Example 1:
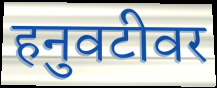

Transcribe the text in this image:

हनुवटीवर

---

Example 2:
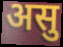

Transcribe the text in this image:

असु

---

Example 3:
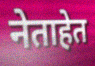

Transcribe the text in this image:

नेताहेत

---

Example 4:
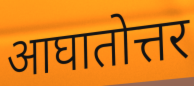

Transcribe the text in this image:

आघातोत्तर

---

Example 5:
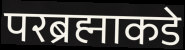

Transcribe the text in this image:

परब्रह्माकडे